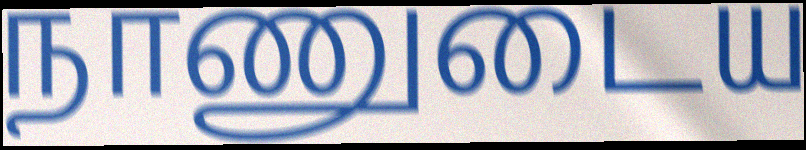
நாணுடைய